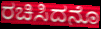
ರಚಿಸಿದನೊ